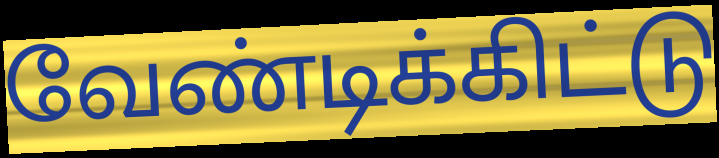
வேண்டிக்கிட்டு